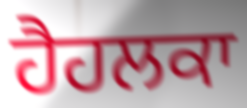
ਹੈਹਲਕਾ